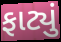
ફાટ્યું